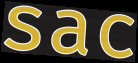
sac